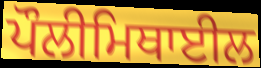
ਪੌਲੀਮਿਥਾਈਲ